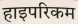
हाइपरिकम